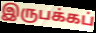
இருபக்கப்